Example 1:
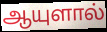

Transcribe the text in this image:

ஆயுளால்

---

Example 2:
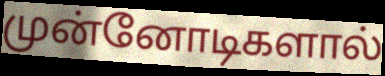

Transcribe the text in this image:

முன்னோடிகளால்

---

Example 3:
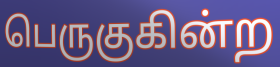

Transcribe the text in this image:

பெருகுகின்ற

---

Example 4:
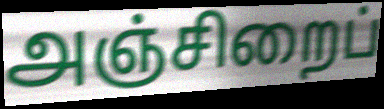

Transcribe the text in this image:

அஞ்சிறைப்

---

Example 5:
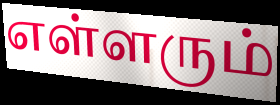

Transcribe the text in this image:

எள்ளரும்